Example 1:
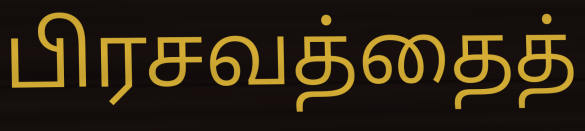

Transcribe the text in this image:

பிரசவத்தைத்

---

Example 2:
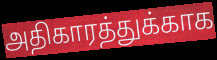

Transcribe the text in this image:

அதிகாரத்துக்காக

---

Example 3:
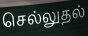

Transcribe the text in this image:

செல்லுதல்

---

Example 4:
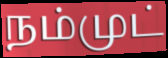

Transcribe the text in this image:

நம்முட்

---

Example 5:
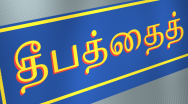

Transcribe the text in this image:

தீபத்தைத்